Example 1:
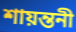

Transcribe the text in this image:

শায়ন্তনী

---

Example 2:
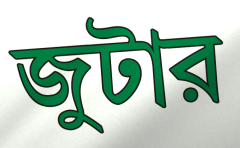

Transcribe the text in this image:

জুটার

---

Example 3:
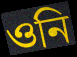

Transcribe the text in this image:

ওনি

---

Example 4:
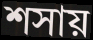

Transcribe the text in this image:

শসায়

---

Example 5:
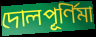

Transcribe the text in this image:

দোলপূর্ণিমা